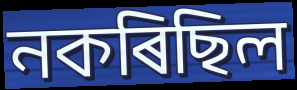
নকৰিছিল